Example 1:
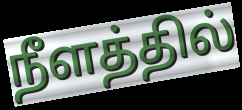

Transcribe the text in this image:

நீளத்தில்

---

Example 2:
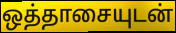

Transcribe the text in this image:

ஒத்தாசையுடன்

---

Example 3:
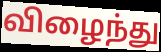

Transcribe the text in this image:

விழைந்து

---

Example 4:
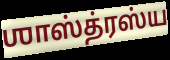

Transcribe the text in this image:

ஶாஸ்த்ரஸ்ய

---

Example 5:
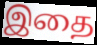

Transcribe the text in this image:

இதை